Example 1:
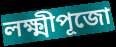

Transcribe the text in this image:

লক্ষ্মীপূজো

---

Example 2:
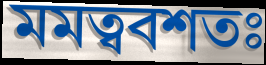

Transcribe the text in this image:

মমত্ববশতঃ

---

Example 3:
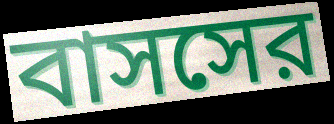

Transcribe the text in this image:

বাসসের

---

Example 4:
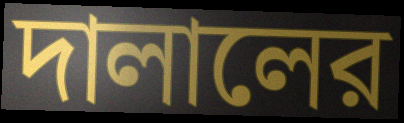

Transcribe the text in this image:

দালালের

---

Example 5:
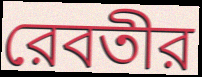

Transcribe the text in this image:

রেবতীর